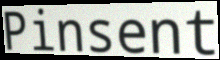
Pinsent